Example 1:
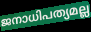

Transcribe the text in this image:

ജനാധിപത്യമല്ല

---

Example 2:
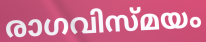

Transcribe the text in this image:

രാഗവിസ്മയം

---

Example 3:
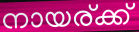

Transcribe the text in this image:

നായര്ക്ക്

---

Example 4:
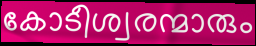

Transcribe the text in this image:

കോടീശ്വരന്മാരും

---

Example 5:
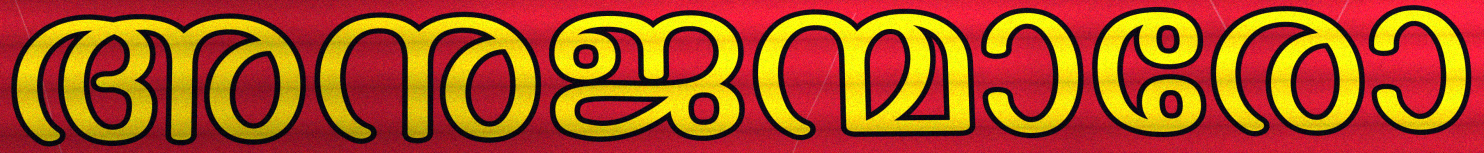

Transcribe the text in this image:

അനുജന്മാരോ